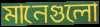
মানেগুলো